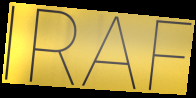
IRAF